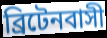
ব্রিটেনবাসী